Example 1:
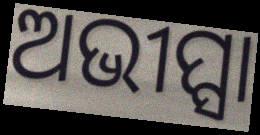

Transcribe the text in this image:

ଅଭୀପ୍ସା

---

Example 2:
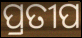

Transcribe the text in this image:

ପ୍ରତୀପ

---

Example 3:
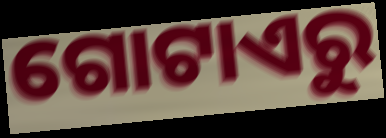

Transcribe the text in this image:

ଗୋଟାଏରୁ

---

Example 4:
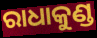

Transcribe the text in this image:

ରାଧାକୁଣ୍ଡ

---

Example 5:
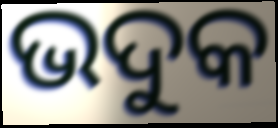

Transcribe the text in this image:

ଭଦୁକ